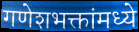
गणेशभक्तांमध्ये